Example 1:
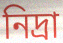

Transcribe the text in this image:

নিদ্ৰা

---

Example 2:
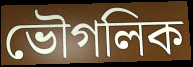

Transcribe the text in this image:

ভৌগলিক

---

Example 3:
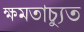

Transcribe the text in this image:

ক্ষমতাচ্যুত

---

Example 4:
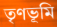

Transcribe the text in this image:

তৃণভূমি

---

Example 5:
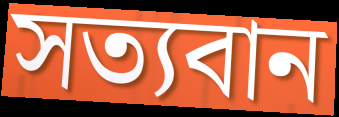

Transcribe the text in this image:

সত্যবান